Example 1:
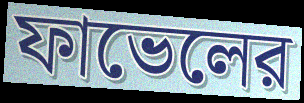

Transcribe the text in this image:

ফাভেলের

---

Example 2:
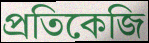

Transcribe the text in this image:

প্রতিকেজি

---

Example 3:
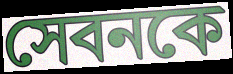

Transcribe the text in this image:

সেবনকে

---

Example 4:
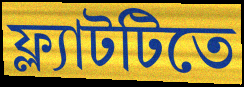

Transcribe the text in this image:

ফ্ল্যাটটিতে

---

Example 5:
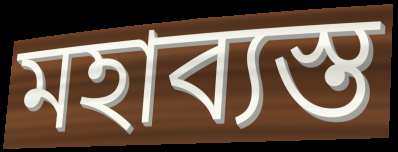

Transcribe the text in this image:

মহাব্যস্ত